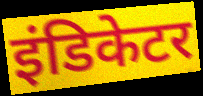
इंडिकेटर